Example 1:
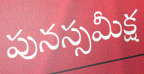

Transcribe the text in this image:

పునస్సమీక్ష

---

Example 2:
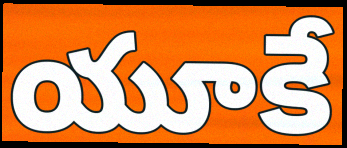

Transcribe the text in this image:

యూకే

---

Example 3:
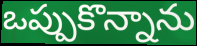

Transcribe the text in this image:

ఒప్పుకొన్నాను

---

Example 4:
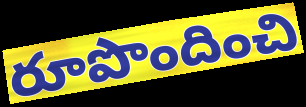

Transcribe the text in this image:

రూపొందించి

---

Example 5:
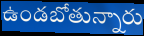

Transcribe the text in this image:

ఉండబోతున్నారు